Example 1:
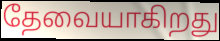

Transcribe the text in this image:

தேவையாகிறது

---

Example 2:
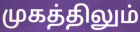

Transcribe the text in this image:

முகத்திலும்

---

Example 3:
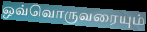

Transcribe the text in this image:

ஒவ்வொருவரையும்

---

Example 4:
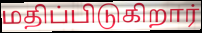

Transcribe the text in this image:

மதிப்பிடுகிறார்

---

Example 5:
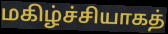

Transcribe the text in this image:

மகிழ்ச்சியாகத்